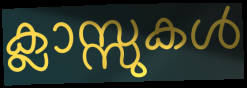
ക്ലാസ്സുകൾ